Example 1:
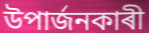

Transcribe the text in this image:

উপাৰ্জনকাৰী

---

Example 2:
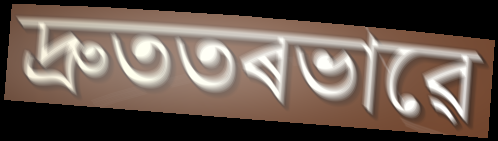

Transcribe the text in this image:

দ্ৰুততৰভাৱে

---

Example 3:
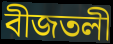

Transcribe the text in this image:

বীজতলী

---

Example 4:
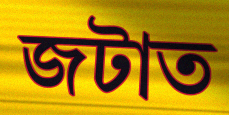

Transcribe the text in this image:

জটাত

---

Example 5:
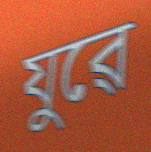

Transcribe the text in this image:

যুৱে